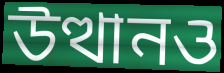
উত্থানও